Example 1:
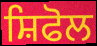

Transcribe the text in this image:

ਸ਼ਿਫੋਲ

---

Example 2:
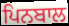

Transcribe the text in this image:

ਪਿਨਬਾਲ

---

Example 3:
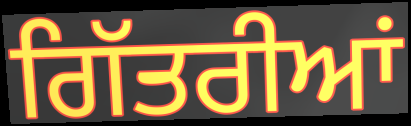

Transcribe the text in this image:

ਗਿੱਤਰੀਆਂ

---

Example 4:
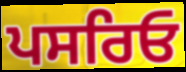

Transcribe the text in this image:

ਪਸਰਿਓ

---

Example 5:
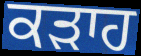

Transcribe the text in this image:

ਕੜਾਹ